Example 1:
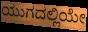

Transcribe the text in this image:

ಯುಗದಲ್ಲಿಯೇ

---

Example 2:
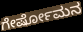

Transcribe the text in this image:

ಗೇರ್ಷೋಮನ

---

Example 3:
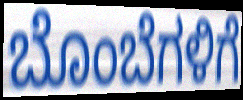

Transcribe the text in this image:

ಬೊಂಬೆಗಳಿಗೆ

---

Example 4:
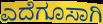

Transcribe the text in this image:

ಎದೆಗೂಸಾಗಿ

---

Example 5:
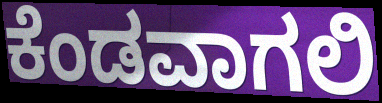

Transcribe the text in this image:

ಕೆಂಡವಾಗಲಿ